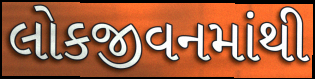
લોકજીવનમાંથી